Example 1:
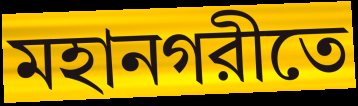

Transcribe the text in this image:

মহানগরীতে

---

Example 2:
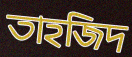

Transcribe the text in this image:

তাহজিদ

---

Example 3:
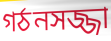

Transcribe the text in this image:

গঠনসজ্জা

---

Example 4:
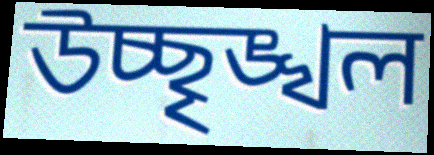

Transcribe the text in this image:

উচ্ছৃঙ্খল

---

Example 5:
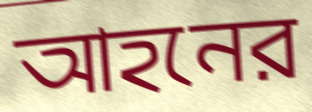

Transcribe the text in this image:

আহনের